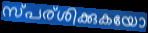
സ്പര്ശിക്കുകയോ